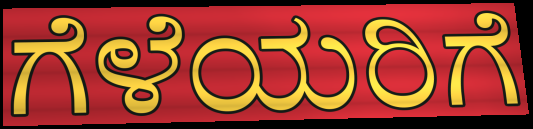
ಗೆಳೆಯರಿಗೆ